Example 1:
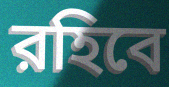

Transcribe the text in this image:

রহিবে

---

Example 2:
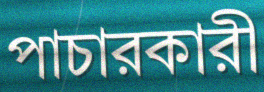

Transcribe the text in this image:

পাচারকারী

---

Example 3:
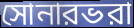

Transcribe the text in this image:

সোনারভরা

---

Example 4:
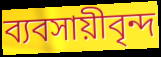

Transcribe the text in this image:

ব্যবসায়ীবৃন্দ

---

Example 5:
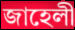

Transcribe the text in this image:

জাহেলী